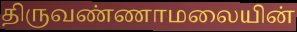
திருவண்ணாமலையின்